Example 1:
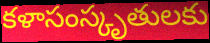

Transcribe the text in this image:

కళాసంస్కృతులకు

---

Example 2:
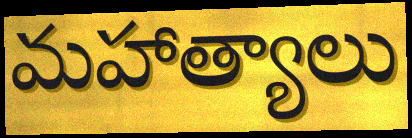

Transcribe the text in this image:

మహాత్యాలు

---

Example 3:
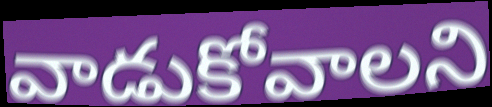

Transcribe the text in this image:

వాడుకోవాలని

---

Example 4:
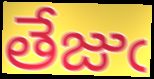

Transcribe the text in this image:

తేజుఁ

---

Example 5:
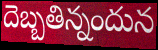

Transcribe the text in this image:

దెబ్బతిన్నందున